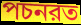
পচনরত